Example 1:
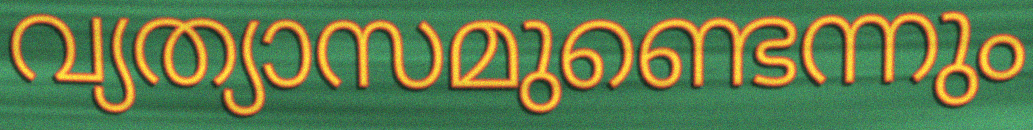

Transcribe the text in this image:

വ്യത്യാസമുണ്ടെന്നും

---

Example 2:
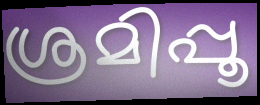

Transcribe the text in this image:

ശ്രമിപ്പൂ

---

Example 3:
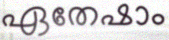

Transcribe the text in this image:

ഏതേഷാം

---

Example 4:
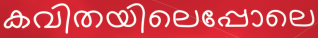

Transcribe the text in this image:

കവിതയിലെപ്പോലെ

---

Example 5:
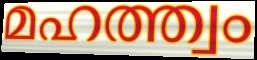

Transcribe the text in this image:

മഹത്ത്വം